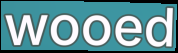
wooed